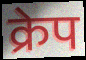
क्रेप